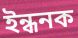
ইন্ধনক